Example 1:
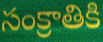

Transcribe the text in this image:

సంక్రాతికి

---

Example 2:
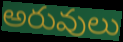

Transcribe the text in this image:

అరువులు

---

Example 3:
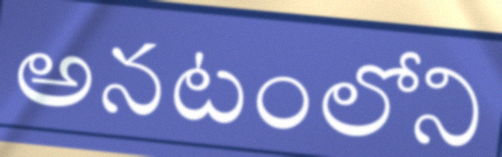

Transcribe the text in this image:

అనటంలోని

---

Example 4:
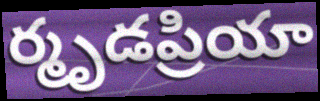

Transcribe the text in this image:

ర్మృడప్రియా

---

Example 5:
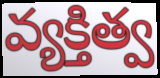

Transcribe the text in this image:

వ్యక్తిత్వ